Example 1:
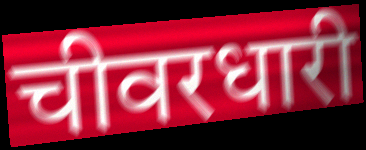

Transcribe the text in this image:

चीवरधारी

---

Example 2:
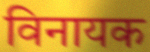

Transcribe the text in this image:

विनायक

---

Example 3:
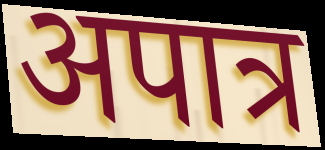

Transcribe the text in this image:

अपात्र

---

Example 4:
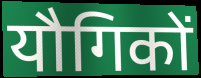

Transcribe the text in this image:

यौगिकों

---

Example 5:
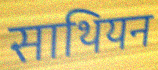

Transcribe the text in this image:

साथियन